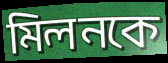
মিলনকে